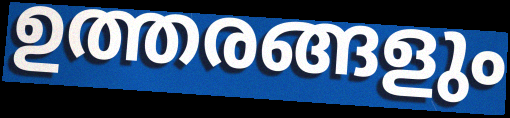
ഉത്തരങ്ങളും